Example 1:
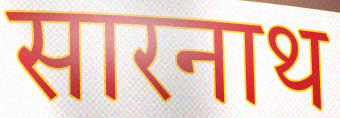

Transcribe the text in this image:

सारनाथ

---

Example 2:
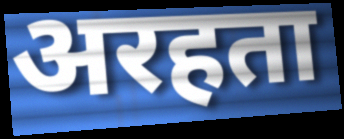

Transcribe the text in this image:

अरहता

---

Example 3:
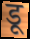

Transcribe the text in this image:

डू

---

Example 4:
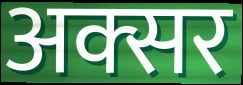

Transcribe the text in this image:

अक्‍सर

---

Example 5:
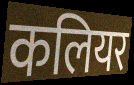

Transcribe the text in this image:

कलियर